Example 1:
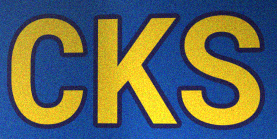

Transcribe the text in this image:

CKS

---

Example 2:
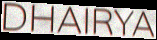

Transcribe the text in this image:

DHAIRYA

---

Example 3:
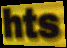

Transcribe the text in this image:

hts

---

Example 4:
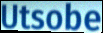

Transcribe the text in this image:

Utsobe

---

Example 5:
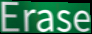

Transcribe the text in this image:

Erase